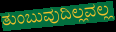
ತುಂಬುವುದಿಲ್ಲವಲ್ಲ